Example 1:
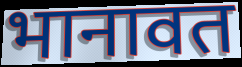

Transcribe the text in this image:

भानावत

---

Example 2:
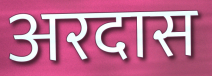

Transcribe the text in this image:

अरदास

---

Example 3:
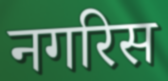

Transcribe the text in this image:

नगरिस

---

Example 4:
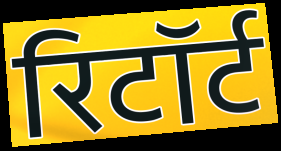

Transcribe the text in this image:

रिटॉर्ट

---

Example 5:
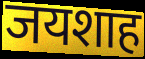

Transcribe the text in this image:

जयशाह